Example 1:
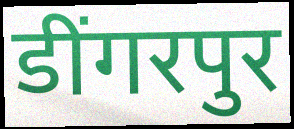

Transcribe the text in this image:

डींगरपुर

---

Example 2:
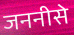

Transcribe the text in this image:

जननीसे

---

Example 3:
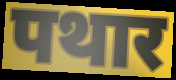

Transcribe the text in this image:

पथार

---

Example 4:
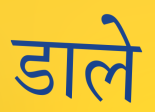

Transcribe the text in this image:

डाले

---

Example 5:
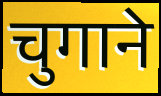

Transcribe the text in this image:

चुगाने